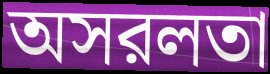
অসরলতা